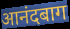
आनंदबाग